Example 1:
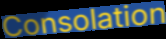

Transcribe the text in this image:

Consolation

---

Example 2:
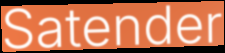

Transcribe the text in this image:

Satender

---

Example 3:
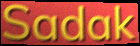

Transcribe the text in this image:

Sadak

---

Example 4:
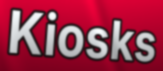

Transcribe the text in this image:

Kiosks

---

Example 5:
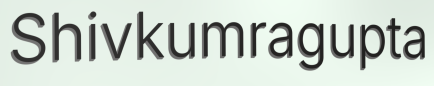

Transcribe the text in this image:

Shivkumragupta